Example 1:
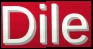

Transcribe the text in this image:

Dile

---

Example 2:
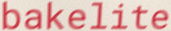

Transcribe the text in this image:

bakelite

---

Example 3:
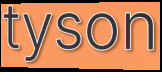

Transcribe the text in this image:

tyson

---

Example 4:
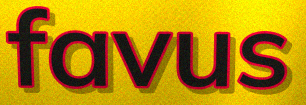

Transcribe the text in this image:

favus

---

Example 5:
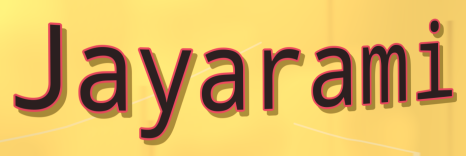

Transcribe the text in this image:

Jayarami